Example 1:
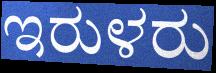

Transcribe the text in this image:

ಇರುಳರು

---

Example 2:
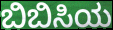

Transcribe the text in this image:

ಬಿಬಿಸಿಯ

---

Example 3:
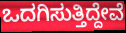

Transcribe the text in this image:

ಒದಗಿಸುತ್ತಿದ್ದೇವೆ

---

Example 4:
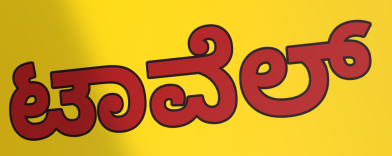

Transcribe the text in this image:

ಟಾವೆಲ್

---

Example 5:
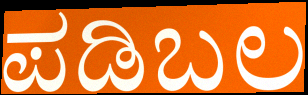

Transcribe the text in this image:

ಪಡಿಬಲ